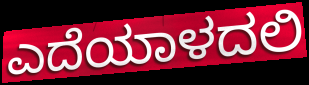
ಎದೆಯಾಳದಲಿ